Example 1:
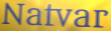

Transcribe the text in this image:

Natvar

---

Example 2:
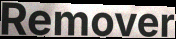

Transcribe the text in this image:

Remover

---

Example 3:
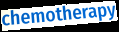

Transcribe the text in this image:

chemotherapy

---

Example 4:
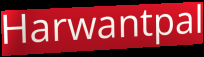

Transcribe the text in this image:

Harwantpal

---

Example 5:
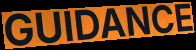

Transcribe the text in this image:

GUIDANCE